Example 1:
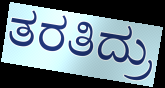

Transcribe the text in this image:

ತರತಿದ್ರು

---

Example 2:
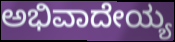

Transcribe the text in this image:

ಅಭಿವಾದೇಯ್ಯ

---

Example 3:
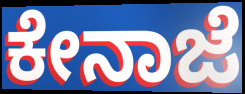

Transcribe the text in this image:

ಕೇನಾಜೆ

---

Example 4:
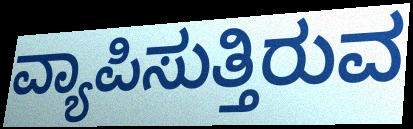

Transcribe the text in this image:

ವ್ಯಾಪಿಸುತ್ತಿರುವ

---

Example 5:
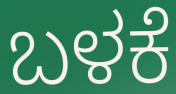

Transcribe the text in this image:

ಬಳಕೆ